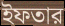
ইফতার